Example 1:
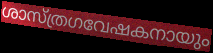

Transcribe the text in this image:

ശാസ്ത്രഗവേഷകനായും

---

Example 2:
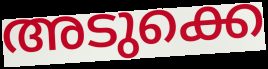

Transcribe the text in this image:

അടുക്കെ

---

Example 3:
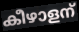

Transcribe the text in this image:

കീഴാളന്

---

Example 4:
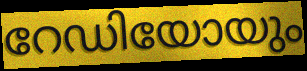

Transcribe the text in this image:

റേഡിയോയും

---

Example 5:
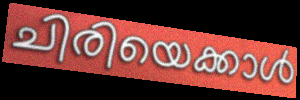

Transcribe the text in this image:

ചിരിയെക്കാൾ